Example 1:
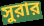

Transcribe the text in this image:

সুরার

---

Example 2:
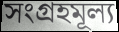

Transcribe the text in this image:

সংগ্রহমূল্য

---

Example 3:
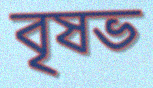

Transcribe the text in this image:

বৃষভ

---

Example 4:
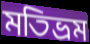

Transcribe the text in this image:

মতিভ্রম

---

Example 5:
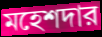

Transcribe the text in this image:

মহেশদার